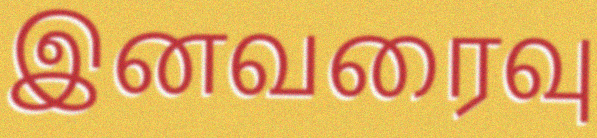
இனவரைவு